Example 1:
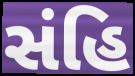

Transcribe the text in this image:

સંહિ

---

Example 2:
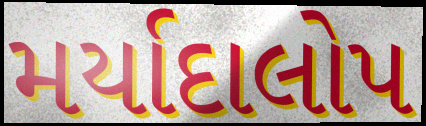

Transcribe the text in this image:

મર્યાદાલોપ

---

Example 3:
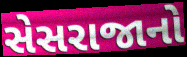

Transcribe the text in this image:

સેસરાજાનો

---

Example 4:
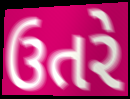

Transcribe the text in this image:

ઉતરે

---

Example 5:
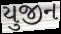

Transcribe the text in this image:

યુજીન